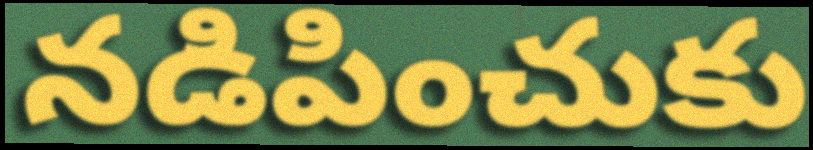
నడిపించుకు